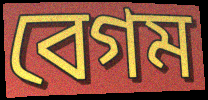
বেগম